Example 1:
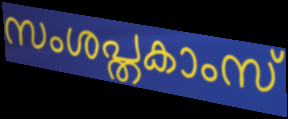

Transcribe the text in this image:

സംശപ്തകാംസ്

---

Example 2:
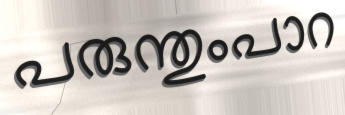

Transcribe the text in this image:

പരുന്തുംപാറ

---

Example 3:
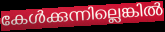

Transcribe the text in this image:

കേൾക്കുന്നില്ലെങ്കിൽ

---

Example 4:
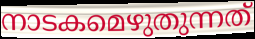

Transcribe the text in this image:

നാടകമെഴുതുന്നത്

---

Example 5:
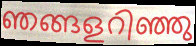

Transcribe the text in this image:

ഞങ്ങളറിഞ്ഞു